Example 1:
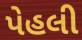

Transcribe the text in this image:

પેહલી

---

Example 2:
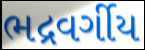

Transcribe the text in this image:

ભદ્રવર્ગીય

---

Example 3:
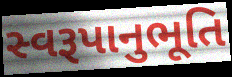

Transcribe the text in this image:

સ્વરૂપાનુભૂતિ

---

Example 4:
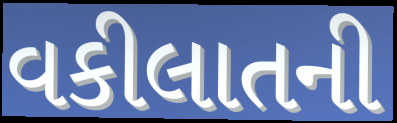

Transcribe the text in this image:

વકીલાતની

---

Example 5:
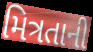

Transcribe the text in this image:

મિત્રતાની